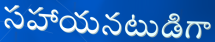
సహాయనటుడిగా